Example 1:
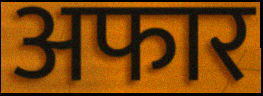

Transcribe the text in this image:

अफार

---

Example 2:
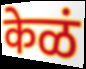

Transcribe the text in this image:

केळं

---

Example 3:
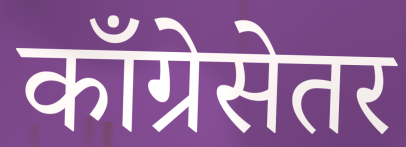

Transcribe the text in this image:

काँग्रेसेतर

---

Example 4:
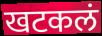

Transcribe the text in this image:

खटकलं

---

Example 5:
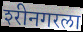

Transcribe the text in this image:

श्रीनगरला